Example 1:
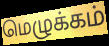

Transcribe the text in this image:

மெழுக்கம்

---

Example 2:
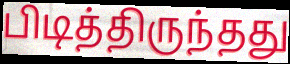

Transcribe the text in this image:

பிடித்திருந்தது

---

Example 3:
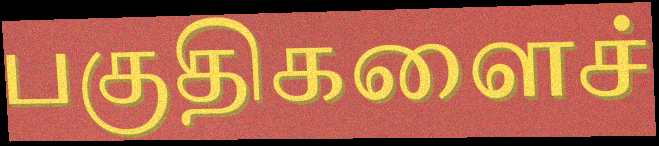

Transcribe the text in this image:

பகுதிகளைச்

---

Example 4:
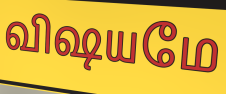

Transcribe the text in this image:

விஷயமே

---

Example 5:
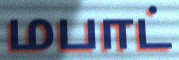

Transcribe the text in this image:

மபாட்